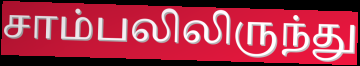
சாம்பலிலிருந்து